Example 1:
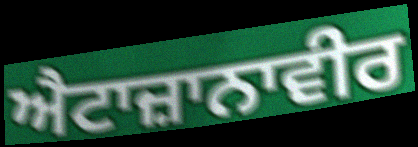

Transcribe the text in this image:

ਐਟਾਜ਼ਾਨਾਵੀਰ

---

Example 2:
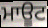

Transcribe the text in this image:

ਮਾਊਟ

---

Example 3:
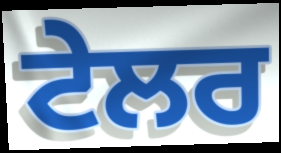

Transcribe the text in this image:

ਟੇਲਰ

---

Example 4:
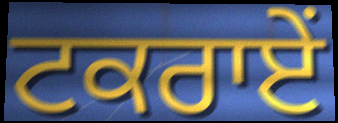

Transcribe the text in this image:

ਟਕਰਾਏਂ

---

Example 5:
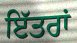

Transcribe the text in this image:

ਇੱਤਰਾਂ